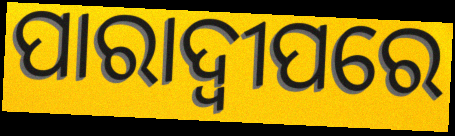
ପାରାଦ୍ବୀପରେ